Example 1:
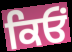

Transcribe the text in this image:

ਕਿਓਂ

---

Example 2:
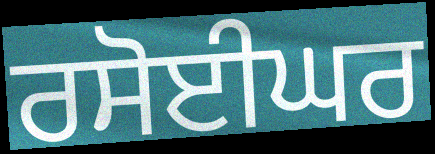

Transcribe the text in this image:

ਰਸੋਈਘਰ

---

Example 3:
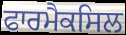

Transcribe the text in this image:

ਫਾਰਮੈਕਸਿਲ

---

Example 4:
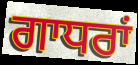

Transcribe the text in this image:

ਗਾਧਰਾਂ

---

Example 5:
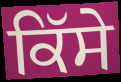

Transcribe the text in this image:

ਕਿੱਸੇ